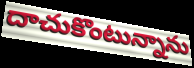
దాచుకొంటున్నాను